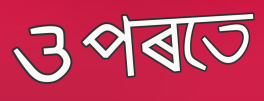
ওপৰতে